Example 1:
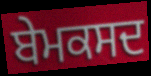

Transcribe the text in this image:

ਬੇਮਕਸਦ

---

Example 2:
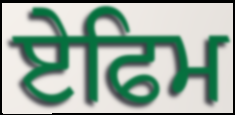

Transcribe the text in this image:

ਏਫਿਮ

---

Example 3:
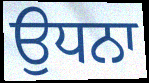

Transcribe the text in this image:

ਉਧਨਾ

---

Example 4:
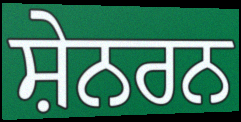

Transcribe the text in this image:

ਸ਼ੇਨਰਨ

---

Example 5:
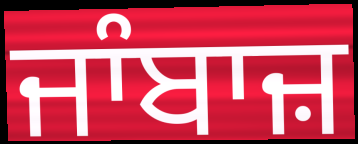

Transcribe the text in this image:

ਜਾੰਬਾਜ਼